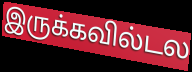
இருக்கவில்டல